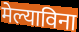
मेल्याविना